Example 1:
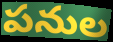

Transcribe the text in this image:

పనుల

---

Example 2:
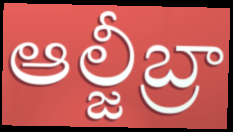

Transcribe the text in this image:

ఆల్జీబ్రా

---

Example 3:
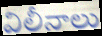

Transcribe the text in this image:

విలీనాలు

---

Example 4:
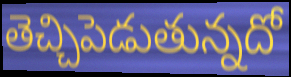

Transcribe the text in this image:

తెచ్చిపెడుతున్నదో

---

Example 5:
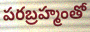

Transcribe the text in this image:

పరబ్రహ్మంతో